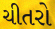
ચીતરો